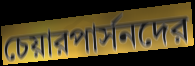
চেয়ারপার্সনদের